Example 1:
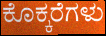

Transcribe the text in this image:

ಕೊಕ್ಕರೆಗಳು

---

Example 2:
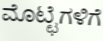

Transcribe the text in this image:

ಮೊಟ್ಟೆಗಳಿಗೆ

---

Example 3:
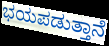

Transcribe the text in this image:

ಭಯಪಡುತ್ತಾನೆ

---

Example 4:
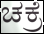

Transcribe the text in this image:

ಚಕ್ರೆ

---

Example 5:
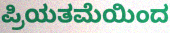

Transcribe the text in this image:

ಪ್ರಿಯತಮೆಯಿಂದ